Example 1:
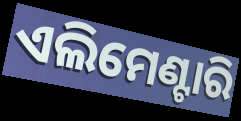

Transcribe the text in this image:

ଏଲିମେଣ୍ଟାରି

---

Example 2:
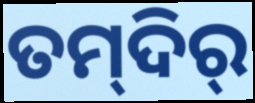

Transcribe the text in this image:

ତମ୍‍ଦିର୍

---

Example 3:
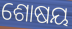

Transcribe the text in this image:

ଶୋଷୟ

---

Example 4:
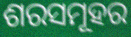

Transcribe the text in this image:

ଶରସମୂହର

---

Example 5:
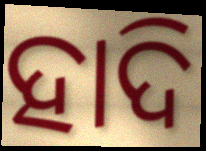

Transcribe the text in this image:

ହାଦି